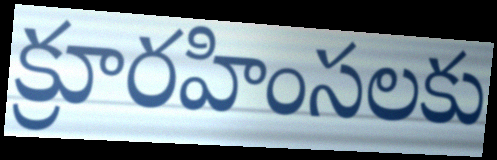
క్రూరహింసలకు